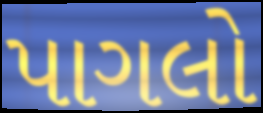
પાગલો